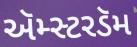
ઍમ્સ્ટરડૅમ